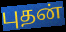
புதன்